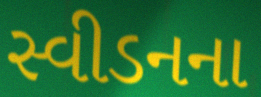
સ્વીડનના